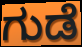
ಗುಡೆ